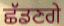
ਛੱਡਣਗੇ